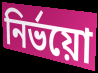
নির্ভয়ো